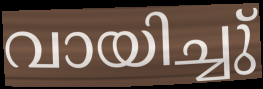
വായിച്ചു്